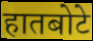
हातबोटे